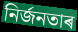
নিৰ্জনতাৰ